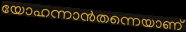
യോഹന്നാൻതന്നെയാണ്